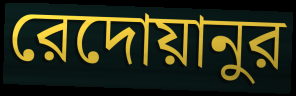
রেদোয়ানুর